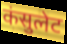
कंसुलेट